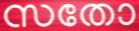
സതോ